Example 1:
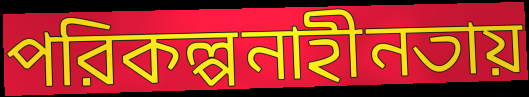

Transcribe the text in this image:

পরিকল্পনাহীনতায়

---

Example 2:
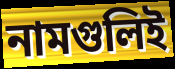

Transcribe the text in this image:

নামগুলিই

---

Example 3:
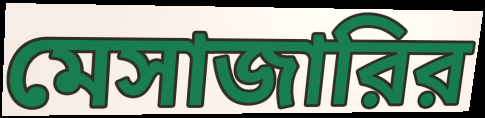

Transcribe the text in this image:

মেসাজারির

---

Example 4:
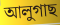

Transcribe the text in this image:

আলুগাছ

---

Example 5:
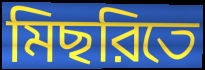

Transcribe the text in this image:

মিছরিতে